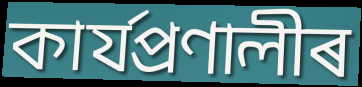
কাৰ্যপ্ৰণালীৰ